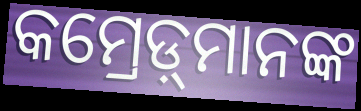
କମ୍ରେଡ଼୍‍ମାନଙ୍କ